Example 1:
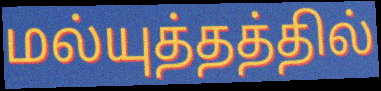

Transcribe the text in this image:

மல்யுத்தத்தில்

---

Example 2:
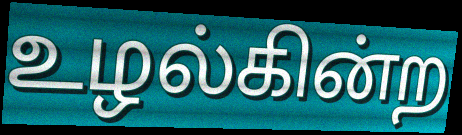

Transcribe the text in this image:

உழல்கின்ற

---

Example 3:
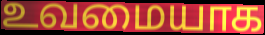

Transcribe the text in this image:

உவமையாக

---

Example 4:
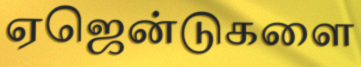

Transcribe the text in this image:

ஏஜென்டுகளை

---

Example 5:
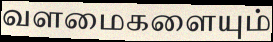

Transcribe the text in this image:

வளமைகளையும்